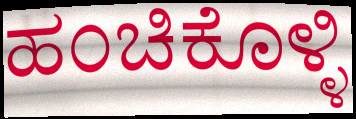
ಹಂಚಿಕೊಳ್ಳಿ